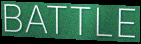
BATTLE